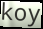
koy